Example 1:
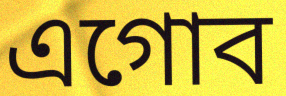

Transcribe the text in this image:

এগোব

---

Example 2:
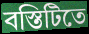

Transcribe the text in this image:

বস্তিটিতে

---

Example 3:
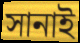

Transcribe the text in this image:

সানাই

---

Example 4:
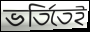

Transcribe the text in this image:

ভর্তিতেই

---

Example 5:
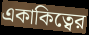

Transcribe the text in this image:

একাকিত্বের